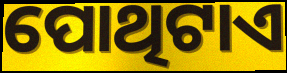
ପୋଥିଟାଏ